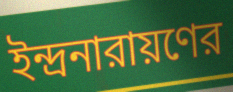
ইন্দ্রনারায়ণের